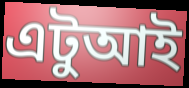
এটুআই